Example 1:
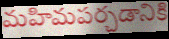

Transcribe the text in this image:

మహిమపర్చడానికి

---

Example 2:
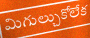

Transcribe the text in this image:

మిగుల్చుకోలేక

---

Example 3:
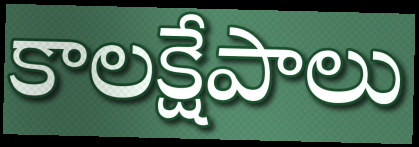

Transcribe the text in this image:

కాలక్షేపాలు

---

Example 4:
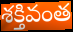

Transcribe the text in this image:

శక్తివంత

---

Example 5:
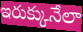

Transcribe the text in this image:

ఇరుక్కునేలా